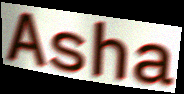
Asha